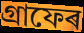
গ্ৰাফেৰ